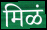
मिळं